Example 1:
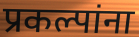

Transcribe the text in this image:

प्रकल्पांना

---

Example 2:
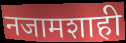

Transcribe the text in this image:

नजामशाही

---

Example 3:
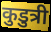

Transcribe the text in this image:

कुडुत्री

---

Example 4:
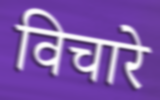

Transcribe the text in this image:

विचारे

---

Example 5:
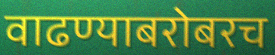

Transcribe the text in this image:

वाढण्याबरोबरच